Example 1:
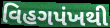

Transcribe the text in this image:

વિહગપંખથી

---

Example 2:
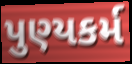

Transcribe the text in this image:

પુણ્યકર્મ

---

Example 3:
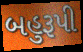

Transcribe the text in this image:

બહુરૂપી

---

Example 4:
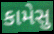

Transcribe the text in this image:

કામેસુ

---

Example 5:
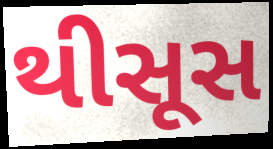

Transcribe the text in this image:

થીસૂસ